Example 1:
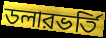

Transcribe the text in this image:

ডলারভর্তি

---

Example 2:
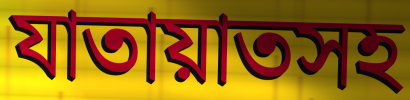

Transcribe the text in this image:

যাতায়াতসহ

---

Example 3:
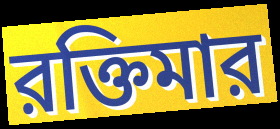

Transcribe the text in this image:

রক্তিমার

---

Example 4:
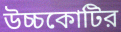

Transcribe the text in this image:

উচ্চকোটির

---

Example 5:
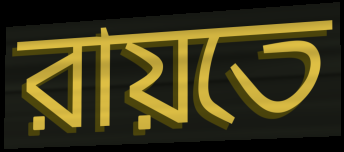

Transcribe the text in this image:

রায়তে